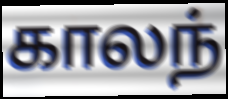
காலந்